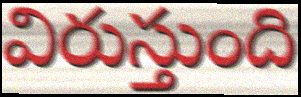
విరుస్తుంది